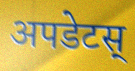
अपडेटस्